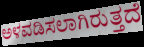
ಅಳವಡಿಸಲಾಗಿರುತ್ತದೆ